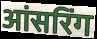
आंसरिंग